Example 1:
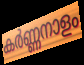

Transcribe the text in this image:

കർണ്ണനാളം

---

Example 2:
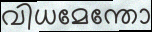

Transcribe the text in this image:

വിധമേന്തോ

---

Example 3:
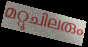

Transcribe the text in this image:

മറ്റുചിലരും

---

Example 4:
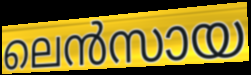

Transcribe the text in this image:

ലെൻസായ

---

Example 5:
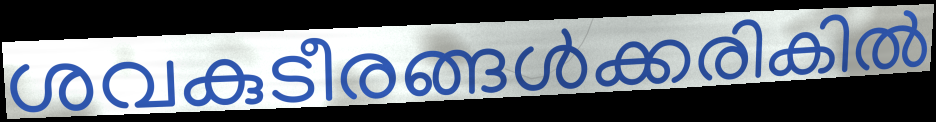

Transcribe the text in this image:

ശവകുടീരങ്ങൾക്കരികിൽ